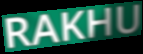
RAKHU